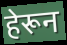
हेरून